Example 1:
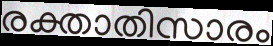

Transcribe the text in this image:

രക്താതിസാരം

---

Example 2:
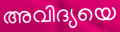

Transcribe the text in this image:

അവിദ്യയെ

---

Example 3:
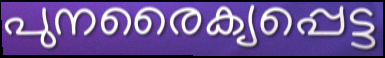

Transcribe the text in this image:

പുനരൈക്യപ്പെട്ട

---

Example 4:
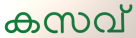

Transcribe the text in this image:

കസവ്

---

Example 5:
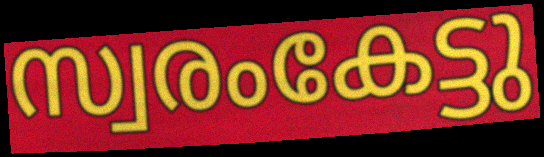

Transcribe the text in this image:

സ്വരംകേട്ടു